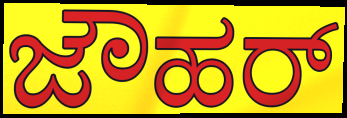
ಜೌಹರ್